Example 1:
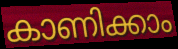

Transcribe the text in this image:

കാണിക്കാം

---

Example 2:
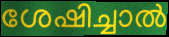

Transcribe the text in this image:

ശേഷിച്ചാൽ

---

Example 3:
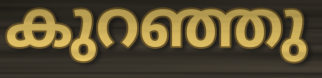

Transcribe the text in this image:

കുറഞ്ഞു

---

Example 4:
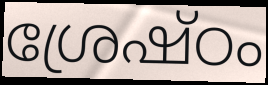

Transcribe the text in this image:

ശ്രേഷ്ഠം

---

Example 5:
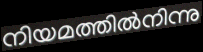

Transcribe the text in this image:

നിയമത്തിൽനിന്നു